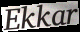
Ekkar